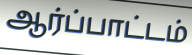
ஆர்ப்பாட்டம்